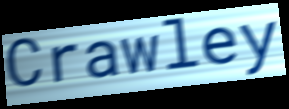
Crawley